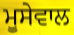
ਮੂਸੇਵਾਲ